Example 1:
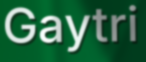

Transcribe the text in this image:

Gaytri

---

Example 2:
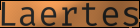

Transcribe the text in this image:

Laertes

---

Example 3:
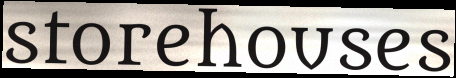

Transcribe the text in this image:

storehouses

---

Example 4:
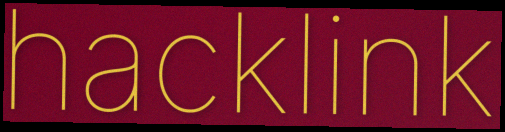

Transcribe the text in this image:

hacklink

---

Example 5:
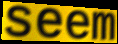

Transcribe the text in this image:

seem